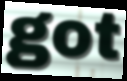
got